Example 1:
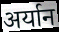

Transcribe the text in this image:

अर्यान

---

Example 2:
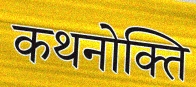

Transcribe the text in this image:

कथनोक्ति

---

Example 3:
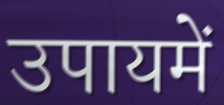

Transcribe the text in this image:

उपायमें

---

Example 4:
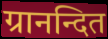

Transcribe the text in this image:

ग्रानन्दित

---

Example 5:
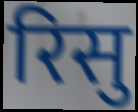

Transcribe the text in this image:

रिसु